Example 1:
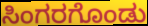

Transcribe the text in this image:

ಸಿಂಗರಗೊಂಡು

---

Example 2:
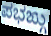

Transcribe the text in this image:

ಪಭಙ್ಗು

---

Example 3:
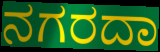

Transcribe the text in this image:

ನಗರದಾ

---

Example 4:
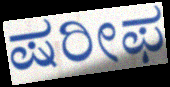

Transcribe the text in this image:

ಷರೀಫ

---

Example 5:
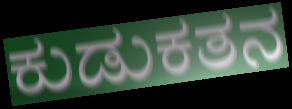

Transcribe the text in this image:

ಕುಡುಕತನ